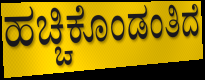
ಹಚ್ಚಿಕೊಂಡಂತಿದೆ